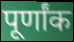
पूर्णांक